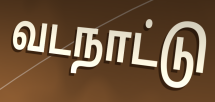
வடநாட்டு